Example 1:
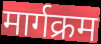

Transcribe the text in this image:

मार्गक्रम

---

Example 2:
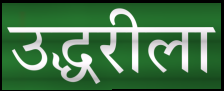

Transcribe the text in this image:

उद्धरीला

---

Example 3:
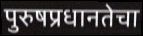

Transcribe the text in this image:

पुरुषप्रधानतेचा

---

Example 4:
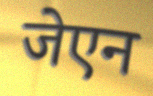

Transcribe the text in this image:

जेएन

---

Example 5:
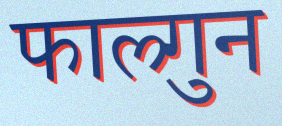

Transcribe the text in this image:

फाल्गुन